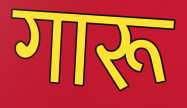
गारू